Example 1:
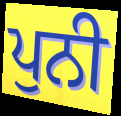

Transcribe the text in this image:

ਪੁਨੀ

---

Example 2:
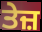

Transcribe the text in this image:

ਤੇਜ਼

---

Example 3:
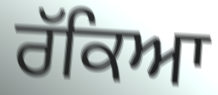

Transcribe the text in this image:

ਰੱਕਿਆ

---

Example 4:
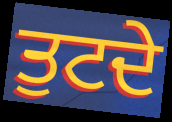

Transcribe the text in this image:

ਤੁਟਦੇ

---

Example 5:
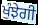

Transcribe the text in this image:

ਖੁੰਝੇਗੀ